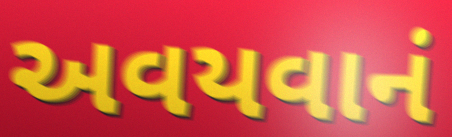
અવયવાનં